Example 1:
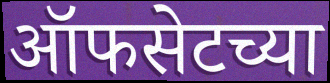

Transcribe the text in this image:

ऑफसेटच्या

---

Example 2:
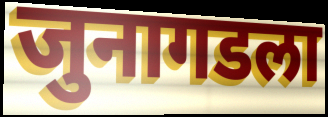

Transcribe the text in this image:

जुनागडला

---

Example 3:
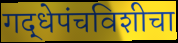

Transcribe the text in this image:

गद्धेपंचविशीचा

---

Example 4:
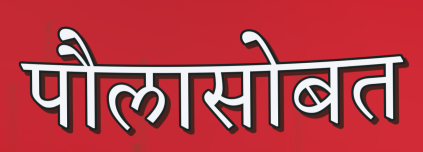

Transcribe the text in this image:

पौलासोबत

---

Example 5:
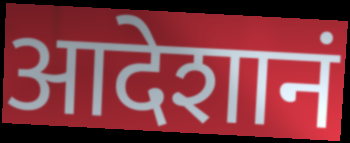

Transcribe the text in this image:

आदेशानं